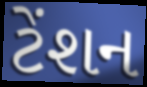
ટેંશન